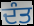
ਦੰਤ